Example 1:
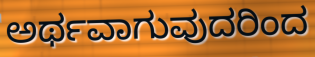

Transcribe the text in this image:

ಅರ್ಥವಾಗುವುದರಿಂದ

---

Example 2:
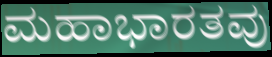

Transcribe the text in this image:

ಮಹಾಭಾರತವು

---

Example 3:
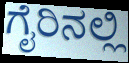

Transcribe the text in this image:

ಗೈರಿನಲ್ಲಿ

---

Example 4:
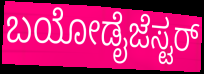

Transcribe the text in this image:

ಬಯೋಡೈಜೆಸ್ಟರ್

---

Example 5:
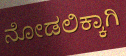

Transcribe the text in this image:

ನೋಡಲಿಕ್ಕಾಗಿ